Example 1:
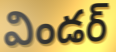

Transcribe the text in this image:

విండర్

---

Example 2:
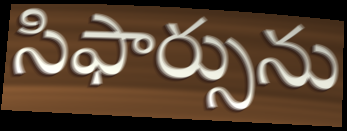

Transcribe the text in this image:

సిఫార్సును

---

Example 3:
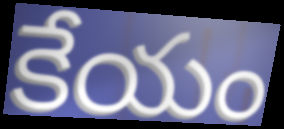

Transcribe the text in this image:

కేయం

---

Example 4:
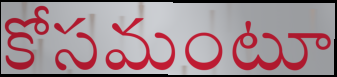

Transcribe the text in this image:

కోసమంటూ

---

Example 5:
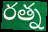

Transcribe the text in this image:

రత్న